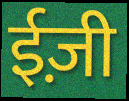
ईज़ी